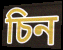
চিন